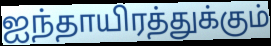
ஐந்தாயிரத்துக்கும்